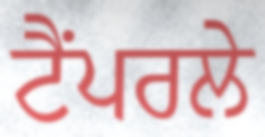
ਟੈਂਪਰਲੇ